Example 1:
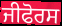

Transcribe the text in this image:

ਜੀਫੋਰਸ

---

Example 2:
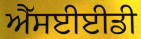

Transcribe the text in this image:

ਐੱਸਈਈਡੀ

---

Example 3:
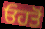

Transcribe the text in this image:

ਓਹਤੋਂ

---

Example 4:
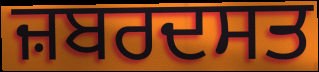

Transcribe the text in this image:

ਜ਼ਬਰਦਸਤ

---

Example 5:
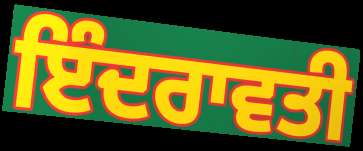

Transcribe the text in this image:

ਇੰਦਰਾਵਤੀ